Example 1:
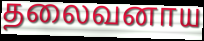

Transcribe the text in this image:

தலைவனாய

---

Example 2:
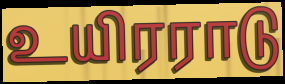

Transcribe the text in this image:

உயிரராடு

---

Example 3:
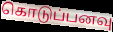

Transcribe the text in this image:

கொடுப்பனவு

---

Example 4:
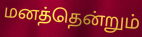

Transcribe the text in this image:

மனத்தென்றும்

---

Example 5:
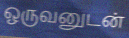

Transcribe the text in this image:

ஒருவனுடன்